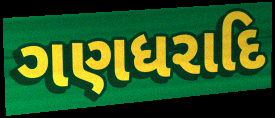
ગણધરાદિ